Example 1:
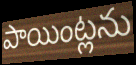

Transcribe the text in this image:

పాయింట్లను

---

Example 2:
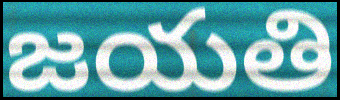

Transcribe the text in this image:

జయతి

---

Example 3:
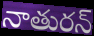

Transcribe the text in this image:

నాతురన్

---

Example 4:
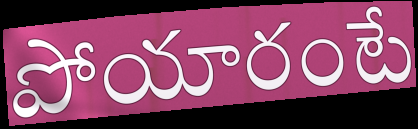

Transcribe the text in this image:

పోయారంటే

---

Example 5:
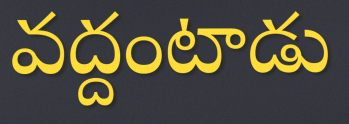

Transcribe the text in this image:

వద్దంటాడు